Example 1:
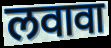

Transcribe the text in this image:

लवावा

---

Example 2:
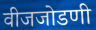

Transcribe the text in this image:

वीजजोडणी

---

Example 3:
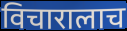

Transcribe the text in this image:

विचारालाच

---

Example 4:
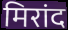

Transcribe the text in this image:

मिरांद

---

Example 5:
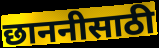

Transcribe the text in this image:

छाननीसाठी